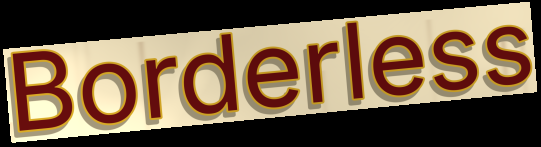
Borderless